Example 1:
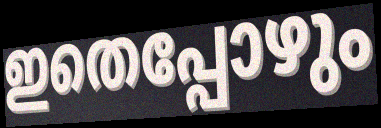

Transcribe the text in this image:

ഇതെപ്പോഴും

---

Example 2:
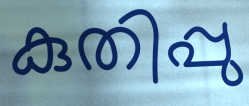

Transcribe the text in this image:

കുതിപ്പു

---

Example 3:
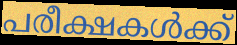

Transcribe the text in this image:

പരീക്ഷകൾക്ക്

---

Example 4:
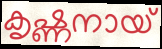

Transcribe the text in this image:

കൃഷ്ണനായ്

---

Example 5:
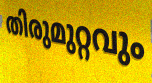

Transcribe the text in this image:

തിരുമുറ്റവും